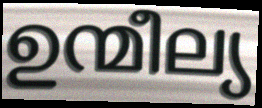
ഉന്മീല്യ